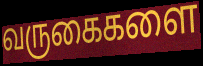
வருகைகளை